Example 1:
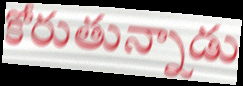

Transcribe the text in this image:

కోరుతున్నాడు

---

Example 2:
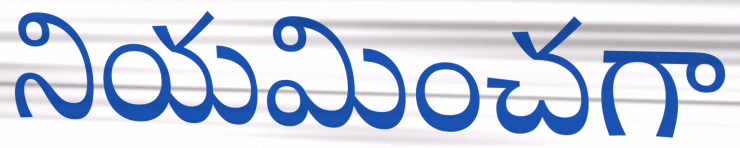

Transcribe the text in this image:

నియమించగా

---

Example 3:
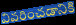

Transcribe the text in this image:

వివరించడానికి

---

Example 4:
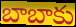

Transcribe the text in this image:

బాబాకు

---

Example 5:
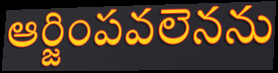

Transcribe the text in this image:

ఆర్జింపవలెనను